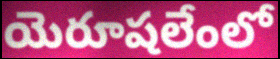
యెరూషలేంలో